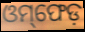
ଓମ୍‌ଫେଡ଼